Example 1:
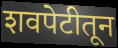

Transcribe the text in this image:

शवपेटीतून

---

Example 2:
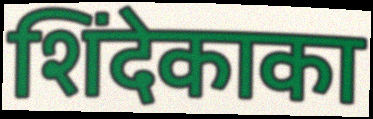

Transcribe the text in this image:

शिंदेकाका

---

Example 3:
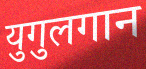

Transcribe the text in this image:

युगुलगान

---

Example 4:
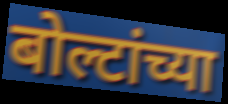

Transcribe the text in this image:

बोल्टांच्या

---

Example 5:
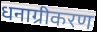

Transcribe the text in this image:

धनाग्रीकरण